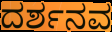
ದರ್ಶನವ